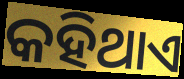
କହିଥାଏ